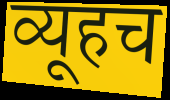
व्यूहच